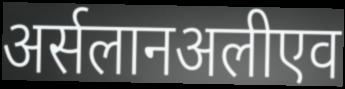
अर्सलानअलीएव